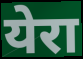
येरा